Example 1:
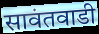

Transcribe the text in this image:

सावंतवाडी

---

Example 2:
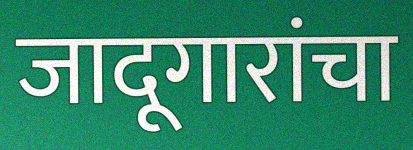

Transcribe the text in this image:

जादूगारांचा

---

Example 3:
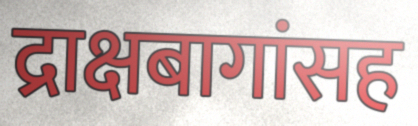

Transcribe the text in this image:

द्राक्षबागांसह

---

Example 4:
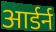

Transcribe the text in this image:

आर्डर्न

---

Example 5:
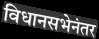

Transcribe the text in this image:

विधानसभेनंतर